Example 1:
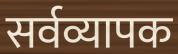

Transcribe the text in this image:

सर्वव्यापक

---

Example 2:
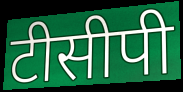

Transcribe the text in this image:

टीसीपी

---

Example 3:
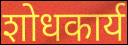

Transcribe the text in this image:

शोधकार्य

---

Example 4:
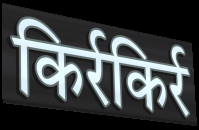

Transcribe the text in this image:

किर्रकिर्र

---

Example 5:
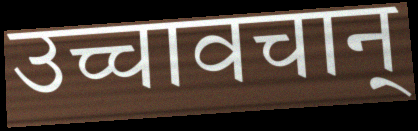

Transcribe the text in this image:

उच्चावचान्